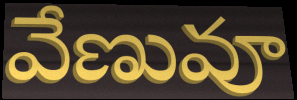
వేణువూ